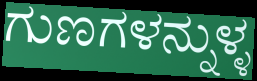
ಗುಣಗಳನ್ನುಳ್ಳ